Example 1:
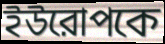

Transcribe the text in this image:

ইউরোপকে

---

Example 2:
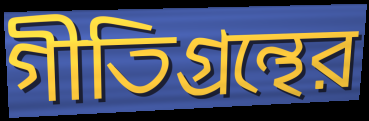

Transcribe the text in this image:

গীতিগ্রন্থের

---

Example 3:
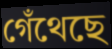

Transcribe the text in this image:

গেঁথেছে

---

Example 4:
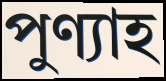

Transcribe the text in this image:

পুণ্যাহ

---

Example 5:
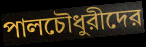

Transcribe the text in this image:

পালচৌধুরীদের